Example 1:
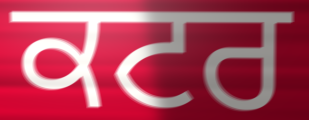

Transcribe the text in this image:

ਕਟਰ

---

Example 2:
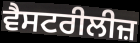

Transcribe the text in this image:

ਵੈਸਟਰੀਲੀਜ਼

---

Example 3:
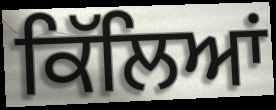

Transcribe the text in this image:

ਕਿੱਲਿਆਂ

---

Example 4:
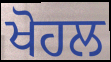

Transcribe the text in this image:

ਖੋਹਲ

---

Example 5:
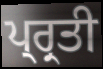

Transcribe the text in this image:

ਪ੍ਰ੍ਰਤੀ